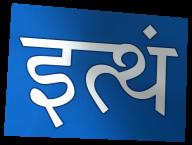
इत्थं